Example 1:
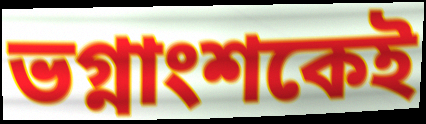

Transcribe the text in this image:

ভগ্নাংশকেই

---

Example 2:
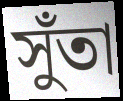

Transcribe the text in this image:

সুঁতা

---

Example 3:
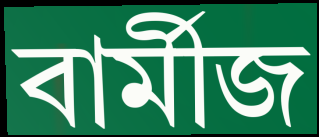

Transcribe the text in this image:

বাৰ্মীজ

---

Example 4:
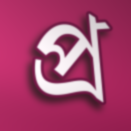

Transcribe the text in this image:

প্ৰ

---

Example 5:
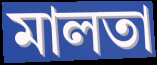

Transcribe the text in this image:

মালতা